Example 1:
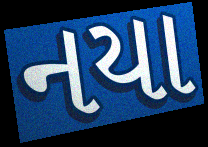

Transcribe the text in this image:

નયા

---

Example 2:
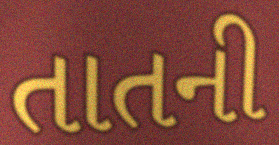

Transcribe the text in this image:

તાતની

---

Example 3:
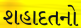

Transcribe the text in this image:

શહાદતનો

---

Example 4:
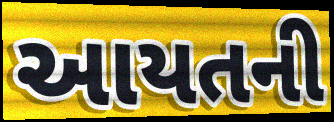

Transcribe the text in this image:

આયતની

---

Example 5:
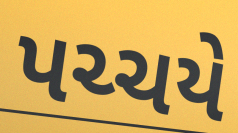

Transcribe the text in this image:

પચ્ચયે